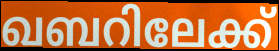
ഖബറിലേക്ക്